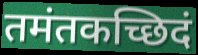
तमंतकच्छिदं